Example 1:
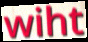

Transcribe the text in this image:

wiht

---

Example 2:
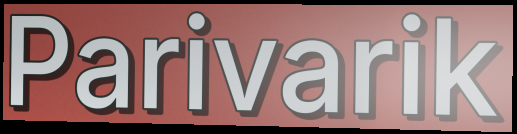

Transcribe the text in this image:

Parivarik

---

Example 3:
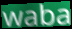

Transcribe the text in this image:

waba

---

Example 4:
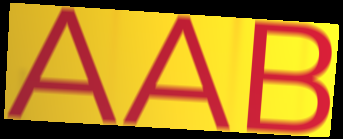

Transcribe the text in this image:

AAB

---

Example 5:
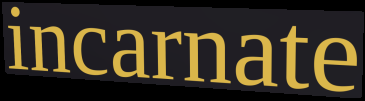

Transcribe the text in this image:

incarnate